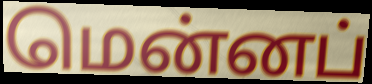
மென்னப்